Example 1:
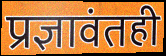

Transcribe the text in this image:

प्रज्ञावंतही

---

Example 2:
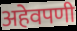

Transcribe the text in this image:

अहेवपणी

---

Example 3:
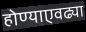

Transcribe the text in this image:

होण्याएवढ्या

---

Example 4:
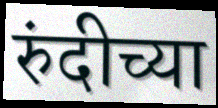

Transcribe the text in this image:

रुंदीच्या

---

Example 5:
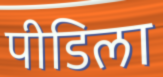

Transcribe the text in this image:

पीडिला